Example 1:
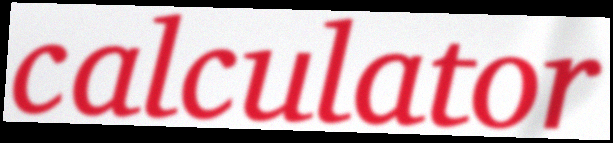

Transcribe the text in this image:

calculator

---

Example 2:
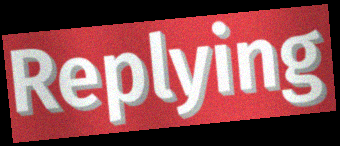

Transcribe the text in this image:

Replying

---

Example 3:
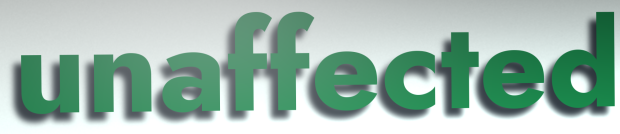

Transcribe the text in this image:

unaffected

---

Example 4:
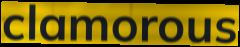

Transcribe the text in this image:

clamorous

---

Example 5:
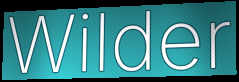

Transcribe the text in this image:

Wilder